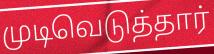
முடிவெடுத்தார்